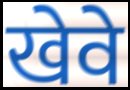
खेवे